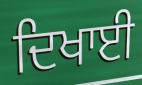
ਦਿਖਾਈ